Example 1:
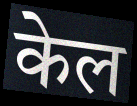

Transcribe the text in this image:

केल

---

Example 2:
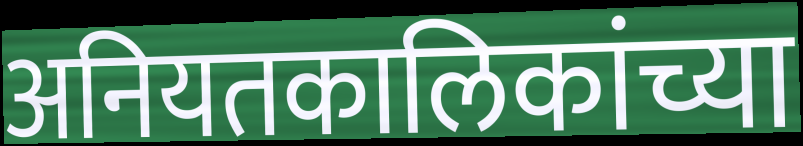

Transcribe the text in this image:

अनियतकालिकांच्या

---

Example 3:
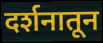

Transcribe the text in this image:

दर्शनातून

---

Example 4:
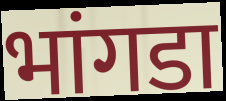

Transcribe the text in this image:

भांगडा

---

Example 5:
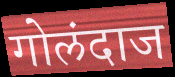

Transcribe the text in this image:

गोलंदाज